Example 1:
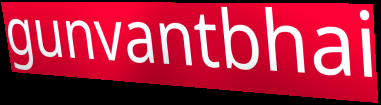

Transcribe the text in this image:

gunvantbhai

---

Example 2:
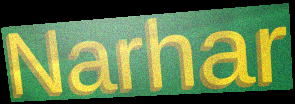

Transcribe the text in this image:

Narhar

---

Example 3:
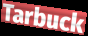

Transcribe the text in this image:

Tarbuck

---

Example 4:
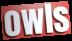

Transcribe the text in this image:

owls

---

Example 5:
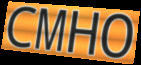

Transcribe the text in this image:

CMHO